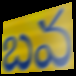
బవ